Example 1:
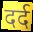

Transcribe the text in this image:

दर्द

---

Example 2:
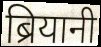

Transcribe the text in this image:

ब्रियानी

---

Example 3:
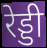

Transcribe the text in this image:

रेड्डी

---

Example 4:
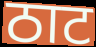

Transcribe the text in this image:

ठाट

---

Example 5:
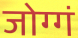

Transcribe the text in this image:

जोग्गं